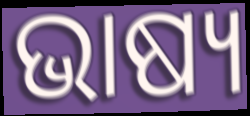
ଭାଷ୍ୟ